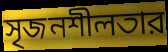
সৃজনশীলতার